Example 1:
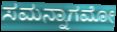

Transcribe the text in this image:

ಸಮನ್ನಾಗಮೋ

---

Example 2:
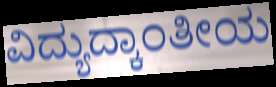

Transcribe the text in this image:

ವಿದ್ಯುದ್ಕಾಂತೀಯ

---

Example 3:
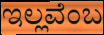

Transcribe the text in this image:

ಇಲ್ಲವೆಂಬ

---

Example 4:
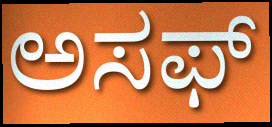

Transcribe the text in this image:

ಅಸಫ್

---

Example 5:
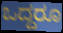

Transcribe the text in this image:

ಒದ್ದರೂ